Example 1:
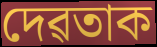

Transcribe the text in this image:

দেৱতাক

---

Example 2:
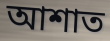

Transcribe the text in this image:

আশাত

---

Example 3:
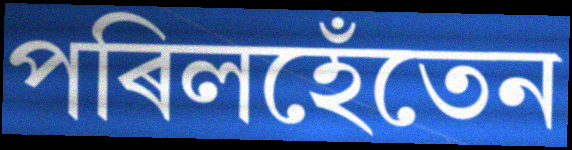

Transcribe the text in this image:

পৰিলহেঁতেন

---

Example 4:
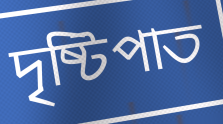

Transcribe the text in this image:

দৃষ্টিপাত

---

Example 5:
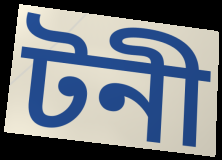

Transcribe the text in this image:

টনী